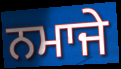
ਨਮਾਜੇ